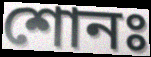
শোনঃ